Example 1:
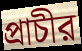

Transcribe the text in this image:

প্রাচীর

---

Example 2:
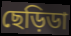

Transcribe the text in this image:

ছেড়িডা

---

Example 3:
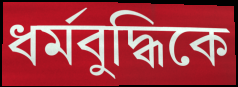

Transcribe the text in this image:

ধর্মবুদ্ধিকে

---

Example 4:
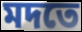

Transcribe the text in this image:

মদতে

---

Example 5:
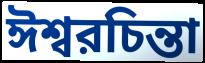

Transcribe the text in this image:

ঈশ্বরচিন্তা